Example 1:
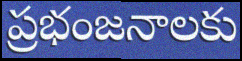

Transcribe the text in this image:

ప్రభంజనాలకు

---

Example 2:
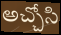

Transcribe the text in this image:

అచ్చోసి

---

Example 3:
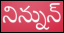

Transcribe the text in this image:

నిన్నున్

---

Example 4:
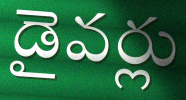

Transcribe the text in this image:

డైవర్లు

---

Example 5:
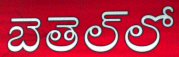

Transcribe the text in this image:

బెతెల్‌లో